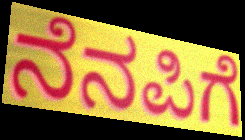
ನೆನಪಿಗೆ